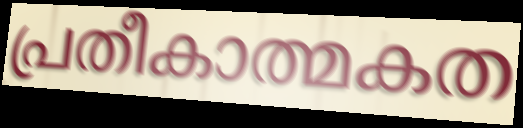
പ്രതീകാത്മകത